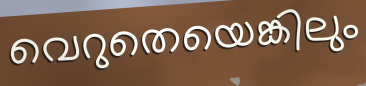
വെറുതെയെങ്കിലും